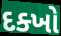
દક્ખો